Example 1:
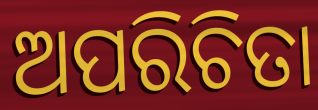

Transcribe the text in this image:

ଅପରିଚିତା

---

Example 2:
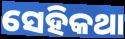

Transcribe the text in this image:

ସେହିକଥା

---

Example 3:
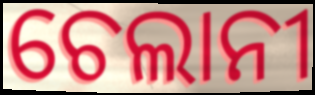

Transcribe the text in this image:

ଚେଲାନୀ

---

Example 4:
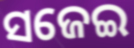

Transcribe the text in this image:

ସଜେଇ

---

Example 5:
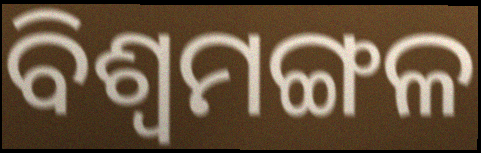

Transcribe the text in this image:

ବିଶ୍ୱମଙ୍ଗଳ